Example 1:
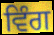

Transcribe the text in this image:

ਵਿੰਗ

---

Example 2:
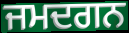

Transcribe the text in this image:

ਜਮਦਗਨ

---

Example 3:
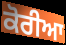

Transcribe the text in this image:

ਕੋਰੀਆ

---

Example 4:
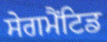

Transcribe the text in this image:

ਸੇਗਮੈਂਟਿਡ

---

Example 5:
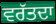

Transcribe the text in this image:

ਵਰੱਤਦਾ